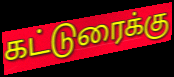
கட்டுரைக்கு